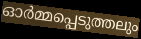
ഓർമ്മപ്പെടുത്തലും